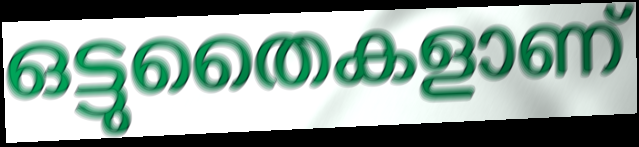
ഒട്ടുതൈകളാണ്